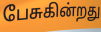
பேசுகின்றது